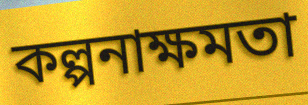
কল্পনাক্ষমতা